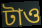
টাও